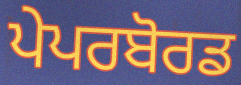
ਪੇਪਰਬੋਰਡ